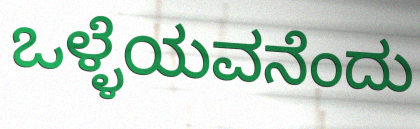
ಒಳ್ಳೆಯವನೆಂದು